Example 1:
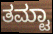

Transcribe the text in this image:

ತಮ್ಟಾ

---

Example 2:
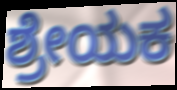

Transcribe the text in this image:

ಶ್ರೇಯಕ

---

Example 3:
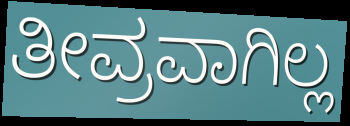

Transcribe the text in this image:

ತೀವ್ರವಾಗಿಲ್ಲ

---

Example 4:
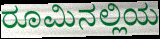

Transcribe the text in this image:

ರೂಮಿನಲ್ಲಿಯ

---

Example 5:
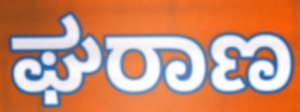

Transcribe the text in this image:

ಘರಾಣ